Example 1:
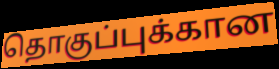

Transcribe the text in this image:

தொகுப்புக்கான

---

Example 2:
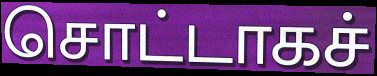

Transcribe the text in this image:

சொட்டாகச்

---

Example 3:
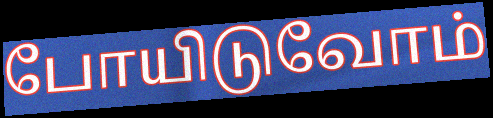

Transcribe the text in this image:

போயிடுவோம்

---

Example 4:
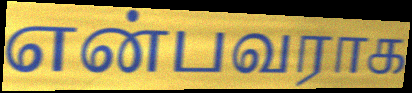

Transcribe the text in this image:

என்பவராக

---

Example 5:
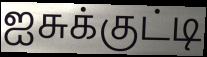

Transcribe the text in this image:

ஐசுக்குட்டி